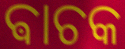
ଵାଚକ